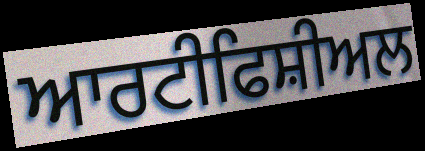
ਆਰਟੀਫਿਸ਼ੀਅਲ